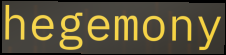
hegemony